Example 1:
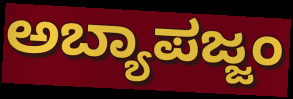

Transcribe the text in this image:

ಅಬ್ಯಾಪಜ್ಜಂ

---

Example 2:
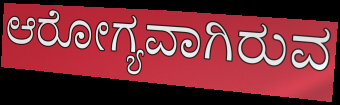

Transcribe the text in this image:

ಆರೋಗ್ಯವಾಗಿರುವ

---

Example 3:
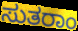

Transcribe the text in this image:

ಸುತರಾಂ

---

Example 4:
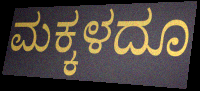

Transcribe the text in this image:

ಮಕ್ಕಳದೂ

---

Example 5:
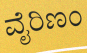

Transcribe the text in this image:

ವೈರಿಣಂ